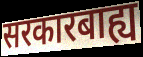
सरकारबाह्य